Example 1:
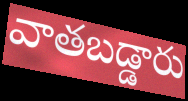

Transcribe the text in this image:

వాతబడ్డారు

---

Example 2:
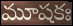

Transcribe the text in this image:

మూషకః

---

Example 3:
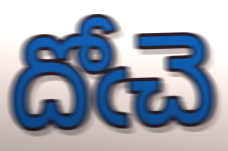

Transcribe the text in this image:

దోఁచె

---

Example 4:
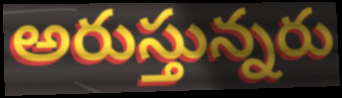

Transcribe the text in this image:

అరుస్తున్నరు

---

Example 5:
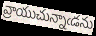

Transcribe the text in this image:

వ్రాయుచున్నాఁడను